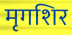
मृगशिर